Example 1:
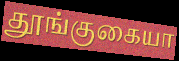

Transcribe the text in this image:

தூங்குகையா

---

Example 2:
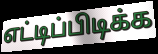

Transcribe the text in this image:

எட்டிப்பிடிக்க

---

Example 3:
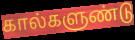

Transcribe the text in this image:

கால்களுண்டு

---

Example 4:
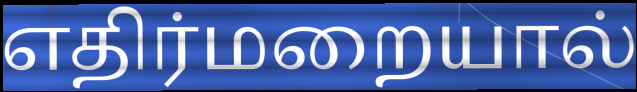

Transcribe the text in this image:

எதிர்மறையால்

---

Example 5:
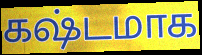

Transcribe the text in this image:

கஷ்டமாக